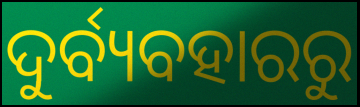
ଦୁର୍ବ୍ୟବହାରରୁ